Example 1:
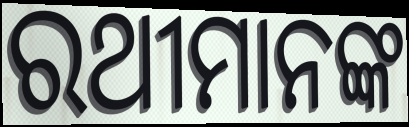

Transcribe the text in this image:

ରଥୀମାନଙ୍କ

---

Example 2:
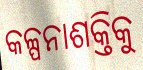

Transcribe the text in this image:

କଳ୍ପନାଶକ୍ତିକୁ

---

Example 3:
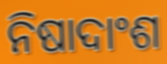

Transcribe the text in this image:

ନିଷାଦାଂଶ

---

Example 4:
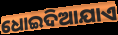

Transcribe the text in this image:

ଧୋଇଦିଆଯାଏ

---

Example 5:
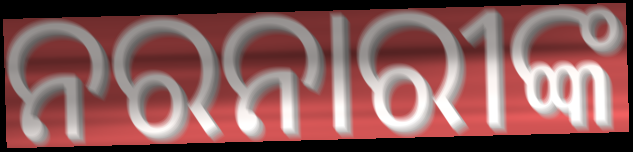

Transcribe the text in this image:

ନରନାରୀଙ୍କ